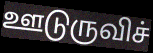
ஊடுருவிச்